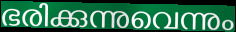
ഭരിക്കുന്നുവെന്നും